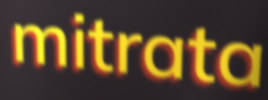
mitrata